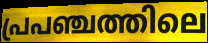
പ്രപഞ്ചത്തിലെ